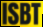
ISBT